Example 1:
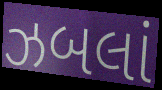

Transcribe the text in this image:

ઝબલાં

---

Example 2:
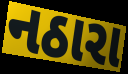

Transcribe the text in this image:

નઠારા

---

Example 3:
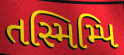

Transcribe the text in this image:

તસ્મિમ્પિ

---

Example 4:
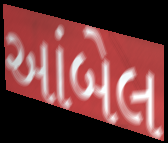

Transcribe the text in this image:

આંબેલ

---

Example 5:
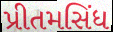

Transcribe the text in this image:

પ્રીતમસિંધ